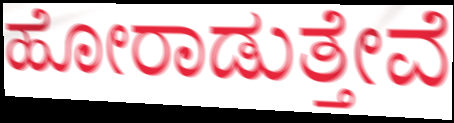
ಹೋರಾಡುತ್ತೇವೆ